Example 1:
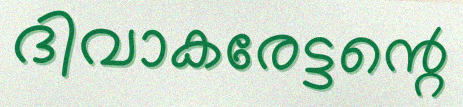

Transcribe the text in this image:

ദിവാകരേട്ടന്റെ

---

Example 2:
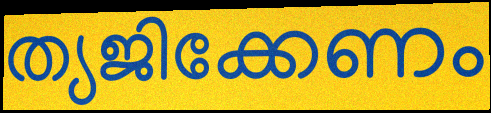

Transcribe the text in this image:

ത്യജിക്കേണം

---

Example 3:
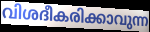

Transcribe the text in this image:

വിശദീകരിക്കാവുന്ന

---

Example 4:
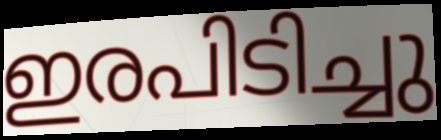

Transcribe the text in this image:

ഇരപിടിച്ചു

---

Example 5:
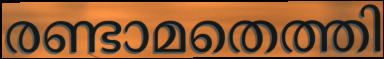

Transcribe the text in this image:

രണ്ടാമതെത്തി